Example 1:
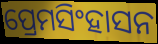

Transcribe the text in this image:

ପ୍ରେମସିଂହାସନ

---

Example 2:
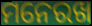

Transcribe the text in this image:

ମନେରଖ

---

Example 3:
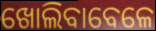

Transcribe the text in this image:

ଖୋଲିବାବେଳେ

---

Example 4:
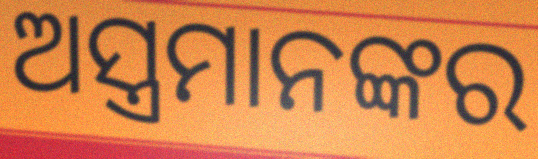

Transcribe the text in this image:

ଅସ୍ତ୍ରମାନଙ୍କର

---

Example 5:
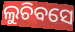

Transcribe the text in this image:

ଲୁଚିବସେ